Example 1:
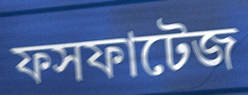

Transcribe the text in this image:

ফসফাটেজ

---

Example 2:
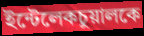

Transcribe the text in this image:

ইন্টেলেকচুয়ালকে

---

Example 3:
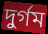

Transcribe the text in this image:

দুর্গম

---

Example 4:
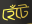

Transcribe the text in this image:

হেঁটে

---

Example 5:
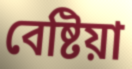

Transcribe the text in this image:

বেষ্টিয়া